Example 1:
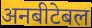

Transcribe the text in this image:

अनबीटेबल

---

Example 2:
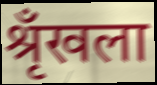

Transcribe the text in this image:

श्रृँखला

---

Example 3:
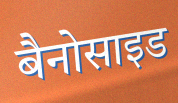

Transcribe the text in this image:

बैनोसाइड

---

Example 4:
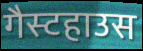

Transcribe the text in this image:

गैस्टहाउस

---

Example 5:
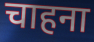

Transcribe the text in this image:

चाहना